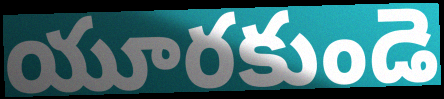
యూరకుండె